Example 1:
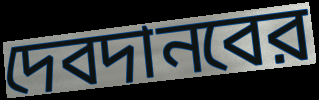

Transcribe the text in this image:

দেবদানবের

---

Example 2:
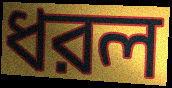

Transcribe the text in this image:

ধরল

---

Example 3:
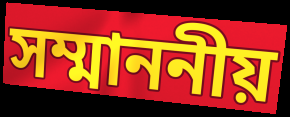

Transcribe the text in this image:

সম্মাননীয়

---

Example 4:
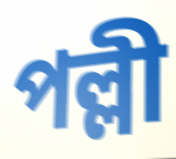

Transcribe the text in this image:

পল্লী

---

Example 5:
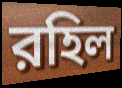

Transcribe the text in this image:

রহিল